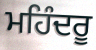
ਮਹਿੰਦਰੂ